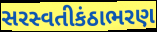
સરસ્વતીકંઠાભરણ